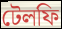
টেলফি